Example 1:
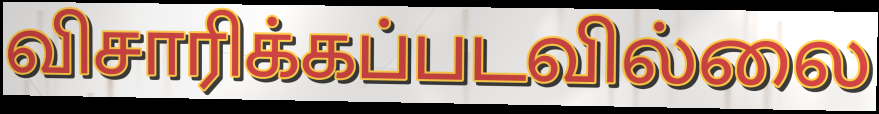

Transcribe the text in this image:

விசாரிக்கப்படவில்லை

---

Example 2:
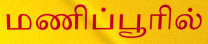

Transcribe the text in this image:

மணிப்பூரில்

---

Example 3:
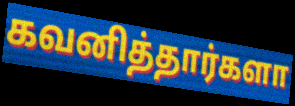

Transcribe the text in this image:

கவனித்தார்களா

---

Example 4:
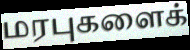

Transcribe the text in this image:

மரபுகளைக்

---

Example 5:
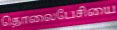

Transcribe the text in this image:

தொலைபேசியை